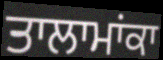
ਤਾਲਾਮਾਂਕਾ